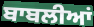
ਬਾਬਲੀਆਂ